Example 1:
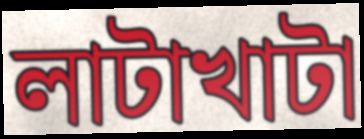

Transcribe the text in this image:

লাটাখাটা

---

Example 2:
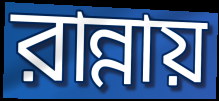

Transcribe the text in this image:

রান্নায়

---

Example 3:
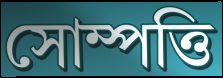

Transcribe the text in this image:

সোম্পত্তি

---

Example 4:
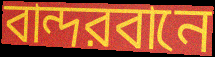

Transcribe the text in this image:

বান্দরবানে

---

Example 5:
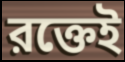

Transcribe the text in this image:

রক্তেই